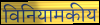
विनियामकीय